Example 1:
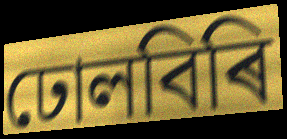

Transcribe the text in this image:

ঢোলবিৰি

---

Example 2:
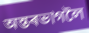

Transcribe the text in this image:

অন্তৰভাগলৈ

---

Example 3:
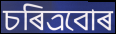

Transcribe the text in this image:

চৰিত্ৰবোৰ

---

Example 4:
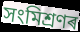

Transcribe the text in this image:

সংমিশ্ৰণৰ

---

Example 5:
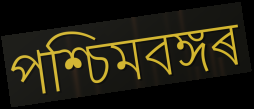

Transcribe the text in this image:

পশ্চিমবঙ্গৰ